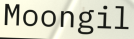
Moongil